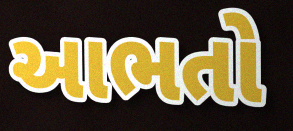
આભતો